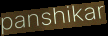
panshikar